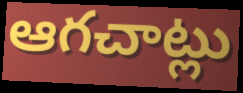
ఆగచాట్లు